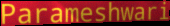
Parameshwari